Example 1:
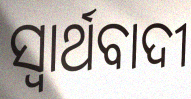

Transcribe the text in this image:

ସ୍ୱାର୍ଥବାଦୀ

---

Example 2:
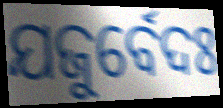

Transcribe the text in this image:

ଯଜୁର୍ବେଦଃ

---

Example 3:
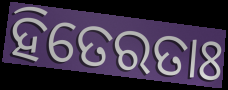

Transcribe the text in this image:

ହିତେରତାଃ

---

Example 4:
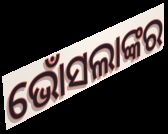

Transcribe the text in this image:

ଭୋଁସଲାଙ୍କର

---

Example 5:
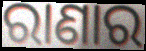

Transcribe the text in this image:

ରାଣାର